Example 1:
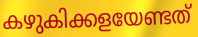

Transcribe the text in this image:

കഴുകിക്കളയേണ്ടത്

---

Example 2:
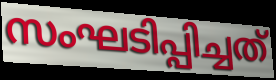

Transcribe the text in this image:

സംഘടിപ്പിച്ചത്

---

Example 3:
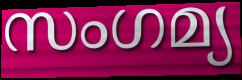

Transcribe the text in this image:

സംഗമ്യ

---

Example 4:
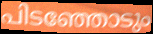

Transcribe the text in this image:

പിടഞ്ഞോടും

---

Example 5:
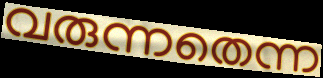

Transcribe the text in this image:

വരുന്നതെന്ന